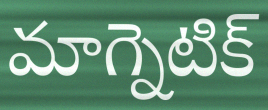
మాగ్నెటిక్